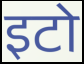
इटो